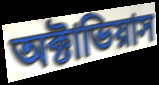
অক্টাভিয়াস